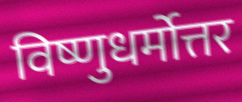
विष्णुधर्मोत्तर